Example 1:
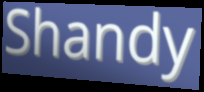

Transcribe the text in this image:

Shandy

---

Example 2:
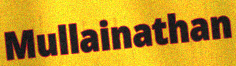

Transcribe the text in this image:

Mullainathan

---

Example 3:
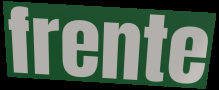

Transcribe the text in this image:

frente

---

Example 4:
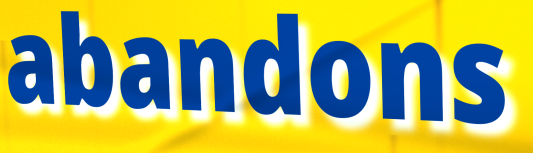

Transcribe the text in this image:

abandons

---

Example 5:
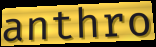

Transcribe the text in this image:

anthro